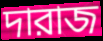
দারাজ